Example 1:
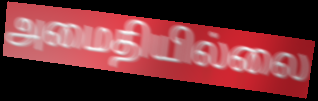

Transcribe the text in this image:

அமைதியில்லை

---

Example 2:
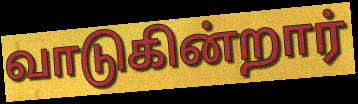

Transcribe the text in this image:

வாடுகின்றார்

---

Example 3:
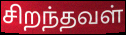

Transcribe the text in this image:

சிறந்தவள்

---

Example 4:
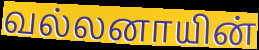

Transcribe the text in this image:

வல்லனாயின்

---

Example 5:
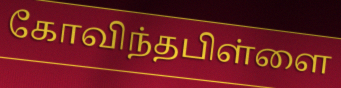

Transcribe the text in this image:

கோவிந்தபிள்ளை